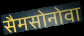
सैमसोनोवा